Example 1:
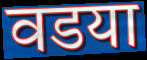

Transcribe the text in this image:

वडया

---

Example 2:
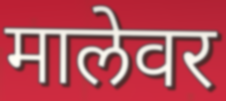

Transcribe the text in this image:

मालेवर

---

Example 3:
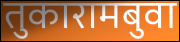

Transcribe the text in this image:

तुकारामबुवा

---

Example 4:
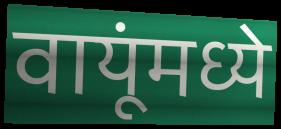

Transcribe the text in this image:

वायूंमध्ये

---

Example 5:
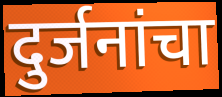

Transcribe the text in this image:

दुर्जनांचा